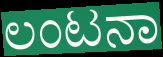
ಲಂಟನಾ